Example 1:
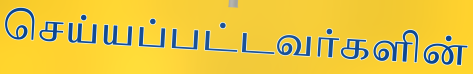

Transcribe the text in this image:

செய்யப்பட்டவர்களின்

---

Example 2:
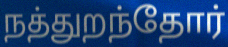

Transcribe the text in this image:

நத்துறந்தோர்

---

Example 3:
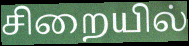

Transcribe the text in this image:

சிறையில்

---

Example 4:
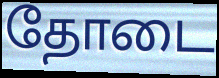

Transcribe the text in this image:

தோடை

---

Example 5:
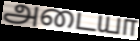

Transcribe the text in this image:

அடையா